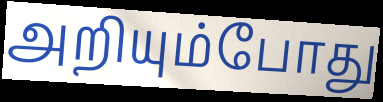
அறியும்போது